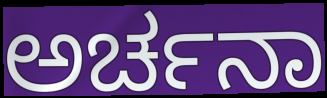
ಅರ್ಚನಾ